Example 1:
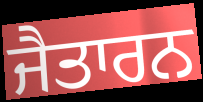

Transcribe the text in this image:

ਜੈਤਾਰਨ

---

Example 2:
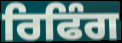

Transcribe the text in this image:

ਰਿਫਿੰਗ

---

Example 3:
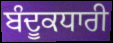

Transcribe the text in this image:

ਬੰਦੂਕਧਾਰੀ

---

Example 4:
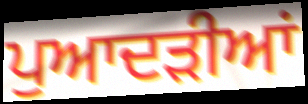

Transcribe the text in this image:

ਪੁਆਦੜੀਆਂ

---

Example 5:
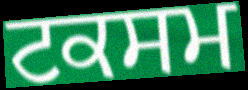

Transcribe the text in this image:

ਟਕਸਮ